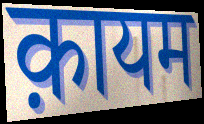
क़ायम